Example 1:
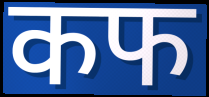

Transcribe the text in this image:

कफ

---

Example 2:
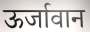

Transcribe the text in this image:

ऊर्जावान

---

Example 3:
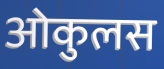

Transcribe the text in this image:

ओकुलस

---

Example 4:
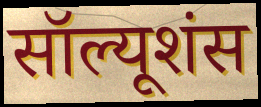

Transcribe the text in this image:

सॉल्यूशंस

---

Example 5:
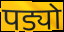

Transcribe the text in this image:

पड्यो